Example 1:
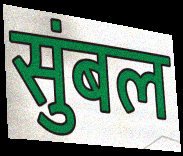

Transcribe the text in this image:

सुंबल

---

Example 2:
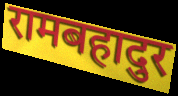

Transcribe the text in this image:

रामबहादुर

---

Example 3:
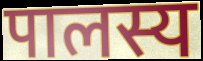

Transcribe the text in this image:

पालस्य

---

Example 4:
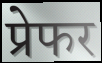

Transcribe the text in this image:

प्रेफर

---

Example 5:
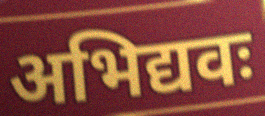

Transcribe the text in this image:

अभिद्यवः